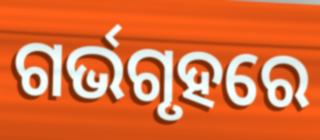
ଗର୍ଭଗୃହରେ